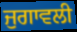
ਜੁਗਾਵਲੀ